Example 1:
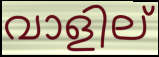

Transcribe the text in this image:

വാളില്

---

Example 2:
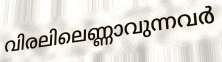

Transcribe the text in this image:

വിരലിലെണ്ണാവുന്നവർ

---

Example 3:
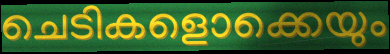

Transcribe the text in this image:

ചെടികളൊക്കെയും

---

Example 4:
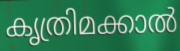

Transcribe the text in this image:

കൃത്രിമക്കാൽ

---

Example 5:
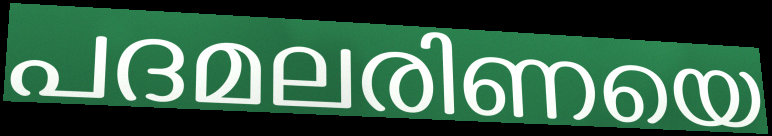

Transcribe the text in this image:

പദമലരിണയെ